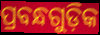
ପ୍ରବନ୍ଧଗୁଡ଼ିକ